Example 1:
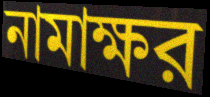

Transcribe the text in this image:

নামাক্ষর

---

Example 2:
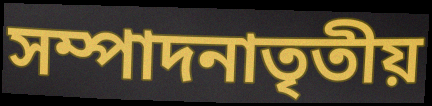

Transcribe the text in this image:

সম্পাদনাতৃতীয়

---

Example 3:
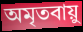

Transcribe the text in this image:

অমৃতবায়ু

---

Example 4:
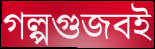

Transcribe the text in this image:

গল্পগুজবই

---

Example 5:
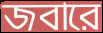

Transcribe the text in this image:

জবারে